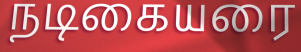
நடிகையரை